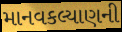
માનવકલ્યાણની